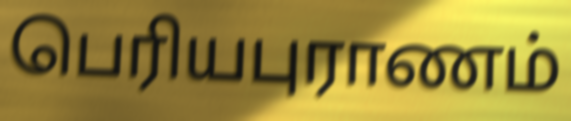
பெரியபுராணம்